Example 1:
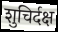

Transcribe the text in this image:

शुचिर्दक्ष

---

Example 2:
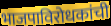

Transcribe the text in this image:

भाजपाविरोधकांची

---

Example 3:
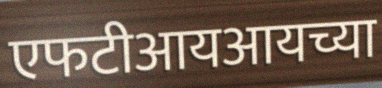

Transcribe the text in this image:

एफटीआयआयच्या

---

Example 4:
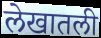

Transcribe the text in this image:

लेखातली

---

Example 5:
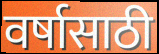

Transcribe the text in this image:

वर्षासाठी